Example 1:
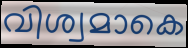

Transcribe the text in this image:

വിശ്വമാകെ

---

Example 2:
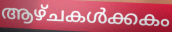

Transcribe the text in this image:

ആഴ്ചകൾക്കകം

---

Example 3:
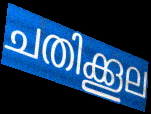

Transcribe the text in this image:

ചതിക്കൂല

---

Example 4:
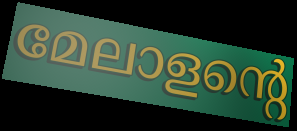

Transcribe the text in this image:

മേലാളന്റെ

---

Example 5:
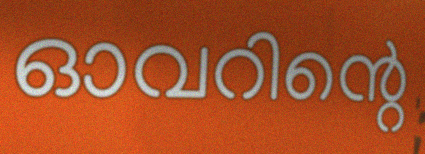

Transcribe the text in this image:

ഓവറിന്റെ